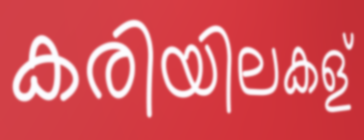
കരിയിലകള്